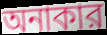
অনাকার